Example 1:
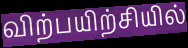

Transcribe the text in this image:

விற்பயிற்சியில்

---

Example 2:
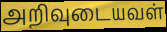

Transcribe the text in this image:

அறிவுடையவள்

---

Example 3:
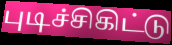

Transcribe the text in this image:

புடிச்சிகிட்டு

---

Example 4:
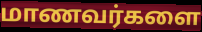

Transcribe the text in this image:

மாணவர்களை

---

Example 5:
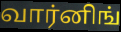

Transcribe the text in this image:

வார்னிங்